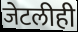
जेटलीही